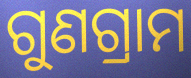
ଗୁଣଗ୍ରାମ